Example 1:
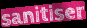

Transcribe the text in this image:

sanitiser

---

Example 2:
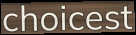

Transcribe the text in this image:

choicest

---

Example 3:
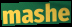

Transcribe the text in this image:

mashe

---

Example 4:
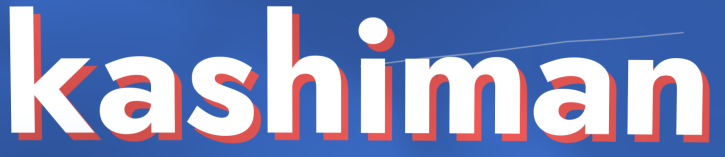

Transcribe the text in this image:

kashiman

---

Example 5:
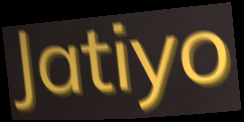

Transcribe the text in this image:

Jatiyo